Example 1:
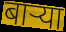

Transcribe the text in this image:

बाऱ्या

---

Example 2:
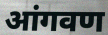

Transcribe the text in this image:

आंगवण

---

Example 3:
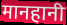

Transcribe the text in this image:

मानहानी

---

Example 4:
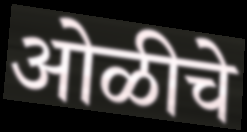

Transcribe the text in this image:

ओळीचे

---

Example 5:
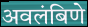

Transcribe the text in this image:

अवलंबिणे